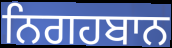
ਨਿਗਹਬਾਨ